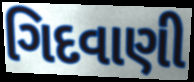
ગિદવાણી